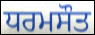
ਧਰਮਸੌਤ